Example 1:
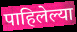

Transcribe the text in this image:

पाहिलेल्या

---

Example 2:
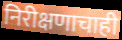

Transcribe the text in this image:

निरीक्षणाचाही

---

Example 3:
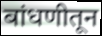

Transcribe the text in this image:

बांधणीतून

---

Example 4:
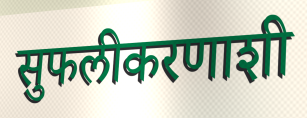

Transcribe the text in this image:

सुफलीकरणाशी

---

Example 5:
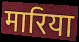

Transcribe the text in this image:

मारिया